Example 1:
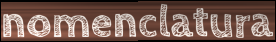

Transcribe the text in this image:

nomenclatura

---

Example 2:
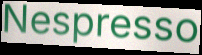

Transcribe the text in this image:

Nespresso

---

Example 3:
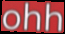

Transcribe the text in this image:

ohh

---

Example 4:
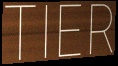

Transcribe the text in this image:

TIER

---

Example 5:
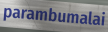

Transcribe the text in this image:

parambumalai